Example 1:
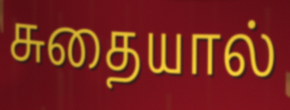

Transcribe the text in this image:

சுதையால்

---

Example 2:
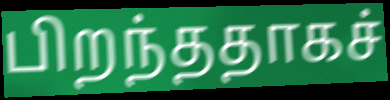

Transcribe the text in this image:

பிறந்ததாகச்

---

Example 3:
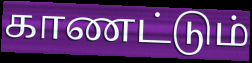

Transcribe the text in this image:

காணட்டும்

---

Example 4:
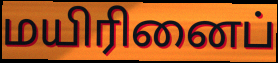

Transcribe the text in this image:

மயிரினைப்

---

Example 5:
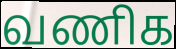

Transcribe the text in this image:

வணிக